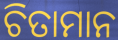
ଚିତାମାନ